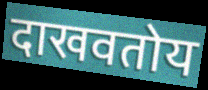
दाखवतोय